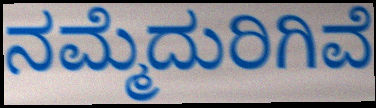
ನಮ್ಮೆದುರಿಗಿವೆ